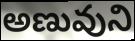
అణువుని